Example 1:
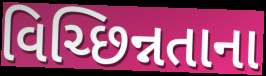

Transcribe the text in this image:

વિચ્છિન્નતાના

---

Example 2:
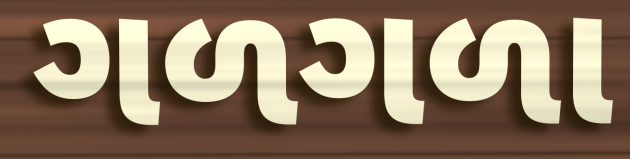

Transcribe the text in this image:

ગળગળા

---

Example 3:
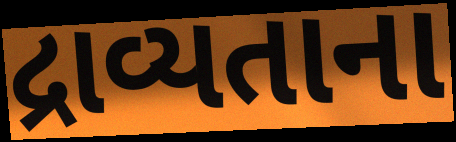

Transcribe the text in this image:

દ્રાવ્યતાના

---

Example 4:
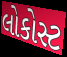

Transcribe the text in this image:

લોકોસ્ટ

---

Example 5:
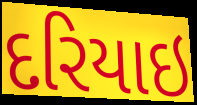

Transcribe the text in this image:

દરિયાઇ